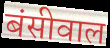
बंसीवाल